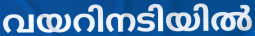
വയറിനടിയിൽ